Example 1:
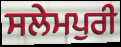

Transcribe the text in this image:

ਸਲੇਮਪੁਰੀ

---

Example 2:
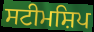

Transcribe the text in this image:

ਸਟੀਮਸ਼ਿਪ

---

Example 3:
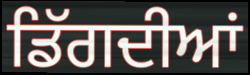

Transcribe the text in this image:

ਡਿੱਗਦੀਆਂ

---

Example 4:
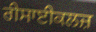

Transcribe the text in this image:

ਰੀਸਾਈਕਲਜ਼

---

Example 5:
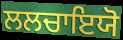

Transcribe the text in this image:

ਲਲਚਾਇਯੋ